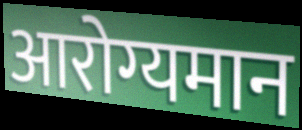
आरोग्यमान